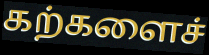
கற்களைச்